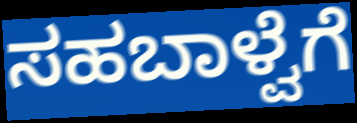
ಸಹಬಾಳ್ವೆಗೆ